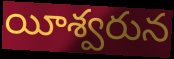
యీశ్వరున